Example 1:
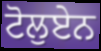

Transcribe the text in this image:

ਟੋਲੁਏਨ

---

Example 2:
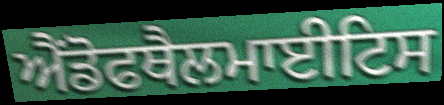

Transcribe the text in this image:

ਐਂਡੋਫਥੈਲਮਾਈਟਿਸ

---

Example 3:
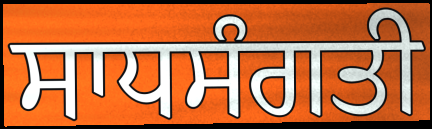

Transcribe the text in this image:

ਸਾਧਸੰਗਤੀ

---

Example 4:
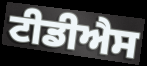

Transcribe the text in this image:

ਟੀਡੀਐਸ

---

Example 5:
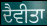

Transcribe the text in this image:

ਦੈਵੀਤਾ